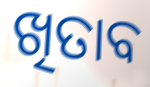
ଖିତାବ